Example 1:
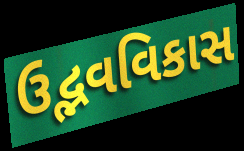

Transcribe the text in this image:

ઉદ્ભવવિકાસ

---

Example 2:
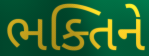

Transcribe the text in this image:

ભક્તિને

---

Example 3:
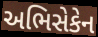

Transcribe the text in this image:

અભિસેકેન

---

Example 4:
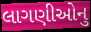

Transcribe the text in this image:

લાગણીઓનુ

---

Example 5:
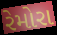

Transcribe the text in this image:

રેમોરા